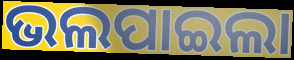
ଭଲପାଇଲା